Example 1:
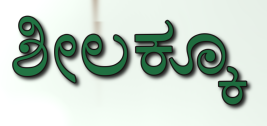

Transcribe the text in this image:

ಶೀಲಕ್ಕೂ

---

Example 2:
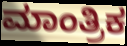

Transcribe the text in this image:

ಮಾಂತ್ರಿಕ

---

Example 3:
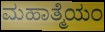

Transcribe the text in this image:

ಮಹಾತ್ಮೆಯಂ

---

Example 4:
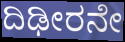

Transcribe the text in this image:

ದಿಢೀರನೇ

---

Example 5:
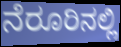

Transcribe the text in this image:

ನೆರೂರಿನಲ್ಲಿ